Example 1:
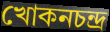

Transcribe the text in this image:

খোকনচন্দ্র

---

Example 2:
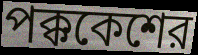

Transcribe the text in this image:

পক্ককেশের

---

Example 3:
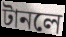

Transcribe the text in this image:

টানলে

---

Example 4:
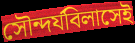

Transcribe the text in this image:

সৌন্দর্যবিলাসেই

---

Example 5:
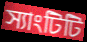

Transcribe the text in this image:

স্যাংটিটি